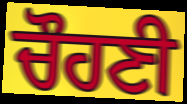
ਚੌਹਣੀ